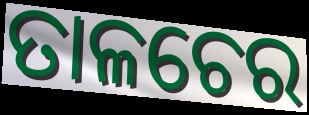
ତାଳଚେର